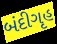
બંદીગૃહ